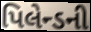
પિલેન્ડની